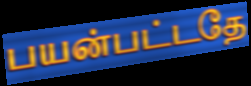
பயன்பட்டதே